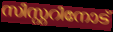
സിസ്റ്ററിനോട്